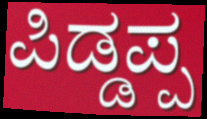
ಪಿಡ್ಡಪ್ಪ